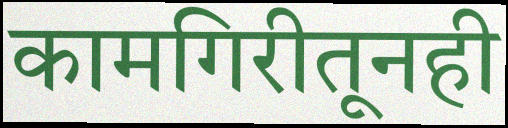
कामगिरीतूनही